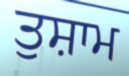
ਤੁਸ਼ਾਮ